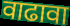
वाढावा